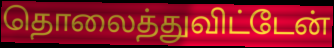
தொலைத்துவிட்டேன்